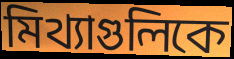
মিথ্যাগুলিকে